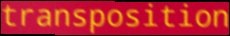
transposition